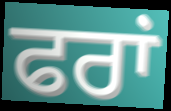
ਫਰਾਂ